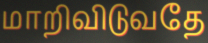
மாறிவிடுவதே